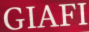
GIAFI